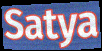
Satya